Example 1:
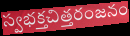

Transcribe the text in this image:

స్వభక్తచిత్తరంజనం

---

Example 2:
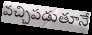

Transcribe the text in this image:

వచ్చిపడుతూనే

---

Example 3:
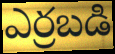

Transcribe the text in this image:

ఎర్రబడి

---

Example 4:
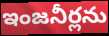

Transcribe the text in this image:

ఇంజనీర్లను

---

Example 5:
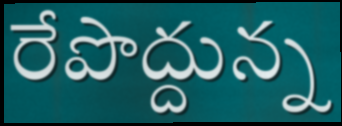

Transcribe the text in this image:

రేపొద్దున్న